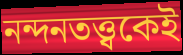
নন্দনতত্ত্বকেই